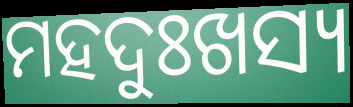
ମହଦୁଃଖସ୍ୟ